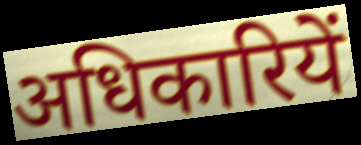
अधिकारियें